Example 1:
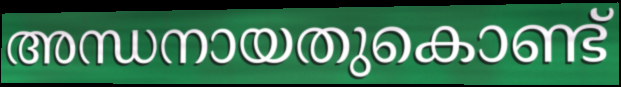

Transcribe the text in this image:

അന്ധനായതുകൊണ്ട്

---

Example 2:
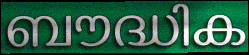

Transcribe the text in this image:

ബൗദ്ധിക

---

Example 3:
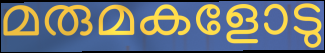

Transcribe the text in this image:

മരുമകളോടു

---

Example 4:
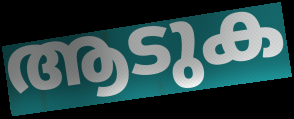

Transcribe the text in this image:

ആടുക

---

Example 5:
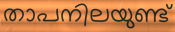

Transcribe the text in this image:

താപനിലയുണ്ട്